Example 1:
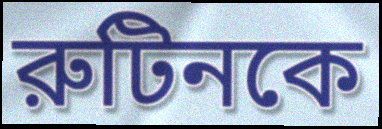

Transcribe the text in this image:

রুটিনকে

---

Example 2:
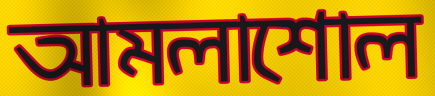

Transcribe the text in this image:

আমলাশোল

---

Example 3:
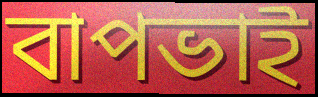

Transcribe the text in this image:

বাপভাই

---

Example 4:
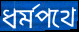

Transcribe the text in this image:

ধর্মপথে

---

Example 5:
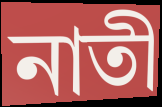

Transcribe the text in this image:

নাতী